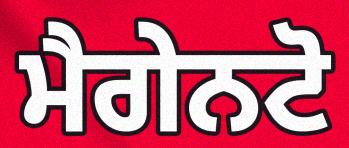
ਮੈਗੇਨਟੋ